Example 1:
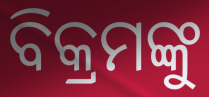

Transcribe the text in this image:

ବିକ୍ରମଙ୍କୁ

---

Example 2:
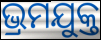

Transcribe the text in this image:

ଭ୍ରମଯୁକ୍ତ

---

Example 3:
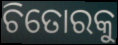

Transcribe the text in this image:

ଚିତୋରକୁ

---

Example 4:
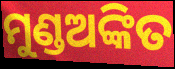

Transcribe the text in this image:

ମୁଣ୍ଡଅଙ୍କିତ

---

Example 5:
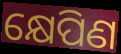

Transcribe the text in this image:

କ୍ଷେପିଣ